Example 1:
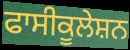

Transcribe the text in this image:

ਫਾਸੀਕੂਲੇਸ਼ਨ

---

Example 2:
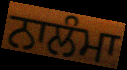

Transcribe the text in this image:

ਨਾਲੰਮਾ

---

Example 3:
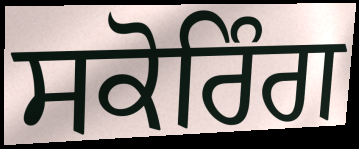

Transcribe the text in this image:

ਸਕੋਰਿੰਗ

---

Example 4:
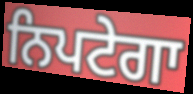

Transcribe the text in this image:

ਨਿਪਟੇਗਾ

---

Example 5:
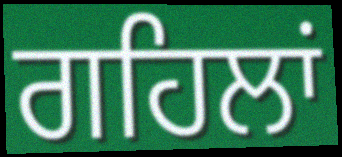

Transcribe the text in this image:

ਗਹਿਲਾਂ